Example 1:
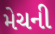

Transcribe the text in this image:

મેચની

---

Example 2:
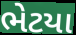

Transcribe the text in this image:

ભેટયા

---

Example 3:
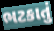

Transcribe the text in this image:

ભટકાતું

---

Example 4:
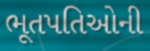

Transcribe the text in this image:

ભૂતપતિઓની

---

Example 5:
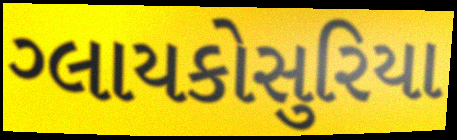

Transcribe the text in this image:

ગ્લાયકોસુરિયા